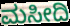
ಮಸೀದಿ